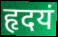
हृदयं